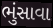
ભુંસાવા